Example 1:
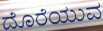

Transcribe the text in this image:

ದೊರೆಯುವ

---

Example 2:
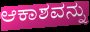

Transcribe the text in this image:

ಆಕಾಶವನ್ನು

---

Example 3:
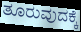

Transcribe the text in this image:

ತೂರುವುದಕ್ಕೆ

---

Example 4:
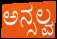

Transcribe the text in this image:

ಅನ್ಸಲ್ವ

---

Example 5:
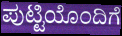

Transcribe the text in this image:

ಪುಟ್ಟಿಯೊಂದಿಗೆ